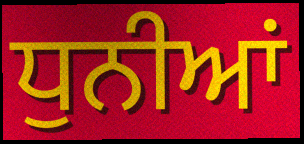
ਧੁਨੀਆਂ